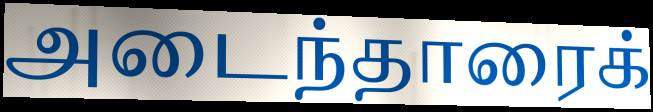
அடைந்தாரைக்